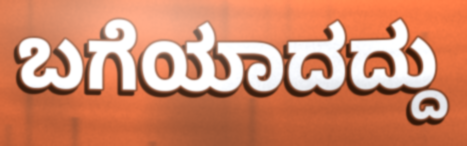
ಬಗೆಯಾದದ್ದು